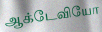
ஆக்டேவியோ